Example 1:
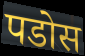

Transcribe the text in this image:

पडोस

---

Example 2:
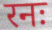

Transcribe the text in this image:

रनः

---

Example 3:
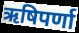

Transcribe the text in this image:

ऋषिपर्णा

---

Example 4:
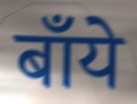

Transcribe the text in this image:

बाँये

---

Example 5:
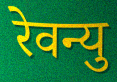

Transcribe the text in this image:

रेवन्यु